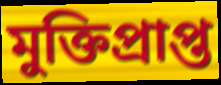
মুক্তিপ্রাপ্ত